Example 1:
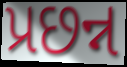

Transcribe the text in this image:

પ્રછન્ન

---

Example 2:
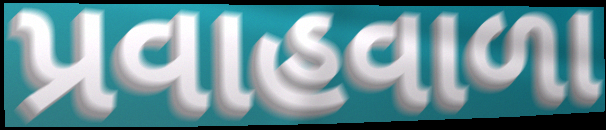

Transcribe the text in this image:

પ્રવાહવાળા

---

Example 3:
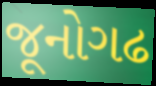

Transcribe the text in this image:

જૂનોગઢ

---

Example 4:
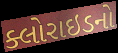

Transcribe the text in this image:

ક્લોરાઇડનો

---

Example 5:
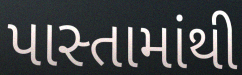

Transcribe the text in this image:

પાસ્તામાંથી